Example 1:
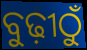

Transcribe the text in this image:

ବୁଢ଼ୀଠୁଁ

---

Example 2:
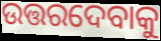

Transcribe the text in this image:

ଉତ୍ତରଦେବାକୁ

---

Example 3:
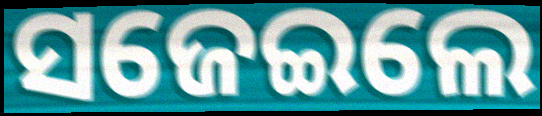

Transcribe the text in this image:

ସଜେଇଲେ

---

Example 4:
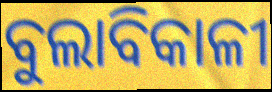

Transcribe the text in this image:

ବୁଲାବିକାଳୀ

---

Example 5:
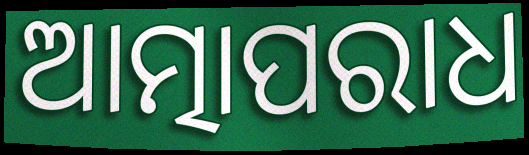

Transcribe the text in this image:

ଆତ୍ମାପରାଧ